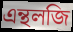
এন্থলজি